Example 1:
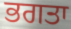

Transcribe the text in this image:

ਭਗਤਾ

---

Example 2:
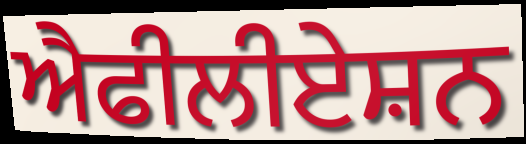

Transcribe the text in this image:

ਐਫੀਲੀਏਸ਼ਨ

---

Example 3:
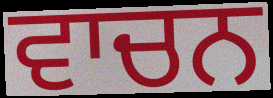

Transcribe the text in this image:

ਵਾਚਨ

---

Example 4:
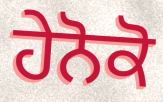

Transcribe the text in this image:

ਹੇਨੋਕੋ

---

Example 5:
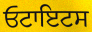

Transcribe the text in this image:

ਓਟਾਇਟਸ